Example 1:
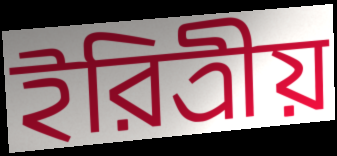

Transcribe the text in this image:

ইরিত্রীয়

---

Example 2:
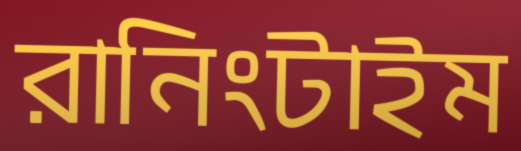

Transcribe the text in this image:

রানিংটাইম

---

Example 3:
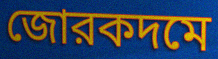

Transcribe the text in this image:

জোরকদমে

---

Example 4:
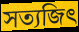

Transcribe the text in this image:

সত্যজিৎ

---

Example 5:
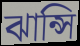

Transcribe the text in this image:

ঝান্সি